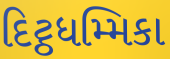
દિટ્ઠધમ્મિકા